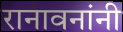
रानावनांनी